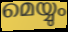
മെയ്യും